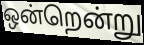
ஒன்றென்று